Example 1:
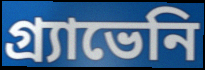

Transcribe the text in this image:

গ্র্যাভেনি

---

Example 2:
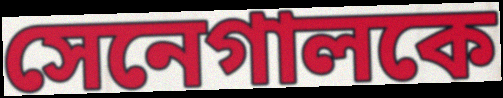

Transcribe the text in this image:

সেনেগালকে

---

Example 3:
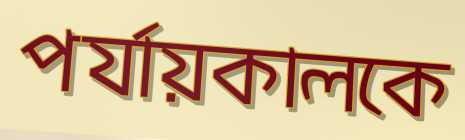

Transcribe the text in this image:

পর্যায়কালকে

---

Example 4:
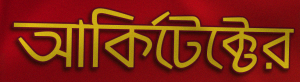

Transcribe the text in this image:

আর্কিটেক্টের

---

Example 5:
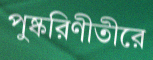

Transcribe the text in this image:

পুষ্করিণীতীরে